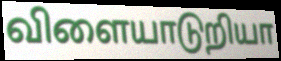
விளையாடுறியா